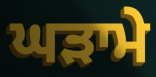
ਘੜਾਮੇ